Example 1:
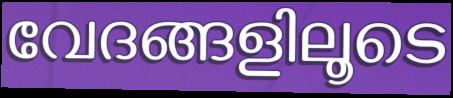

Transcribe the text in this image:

വേദങ്ങളിലൂടെ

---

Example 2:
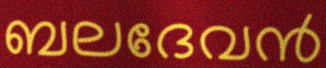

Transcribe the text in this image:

ബലദേവൻ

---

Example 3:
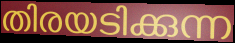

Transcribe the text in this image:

തിരയടിക്കുന്ന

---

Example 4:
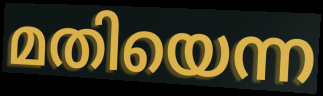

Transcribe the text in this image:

മതിയെന്ന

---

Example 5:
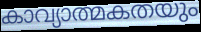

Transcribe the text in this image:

കാവ്യാത്മകതയും